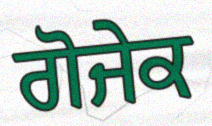
ਗੋਜੇਕ